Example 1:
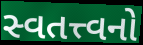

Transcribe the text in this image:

સ્વતત્ત્વનો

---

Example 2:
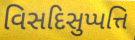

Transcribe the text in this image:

વિસદિસુપ્પત્તિ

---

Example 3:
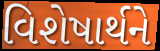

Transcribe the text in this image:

વિશેષાર્થને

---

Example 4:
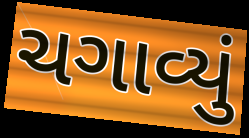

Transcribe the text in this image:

ચગાવ્યું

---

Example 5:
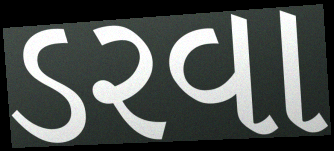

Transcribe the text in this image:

ડરવા